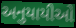
અનુયાયીઓ